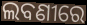
ଲବଣୀରେ